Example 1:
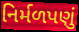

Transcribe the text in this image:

નિર્મળપણું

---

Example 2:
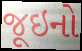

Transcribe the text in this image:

જૂઇનો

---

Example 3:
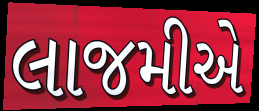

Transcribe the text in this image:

લાજમીએ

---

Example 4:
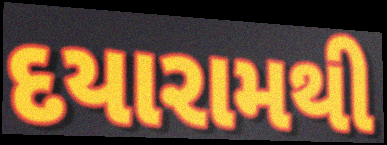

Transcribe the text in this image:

દયારામથી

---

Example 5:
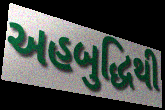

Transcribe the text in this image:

અહબુદ્ધિથી